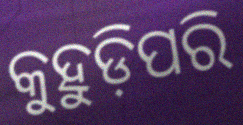
କୁହୁଡ଼ିପରି